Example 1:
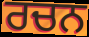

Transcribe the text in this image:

ਰਚਨ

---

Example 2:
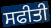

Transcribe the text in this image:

ਸਫੀਤੀ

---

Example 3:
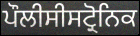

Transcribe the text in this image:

ਪੌਲੀਸੀਸਟ੍ਰੋਨਿਕ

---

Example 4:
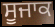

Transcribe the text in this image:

ਸੂਜਾਕ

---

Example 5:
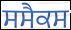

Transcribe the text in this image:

ਸਸੈਕਸ